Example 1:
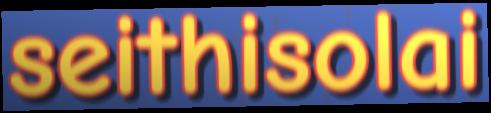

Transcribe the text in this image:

seithisolai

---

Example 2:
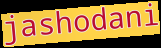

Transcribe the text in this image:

jashodani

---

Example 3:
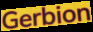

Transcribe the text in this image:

Gerbion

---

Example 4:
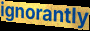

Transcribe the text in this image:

ignorantly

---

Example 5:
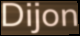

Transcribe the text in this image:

Dijon